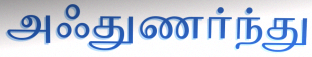
அஃதுணர்ந்து